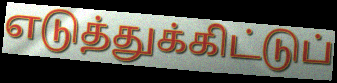
எடுத்துக்கிட்டுப்